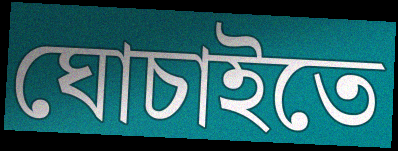
ঘোচাইতে